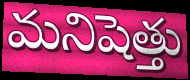
మనిషెత్తు